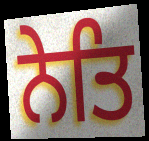
ਨੇਤਿ